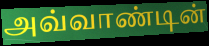
அவ்வாண்டின்